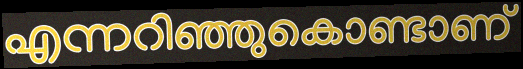
എന്നറിഞ്ഞുകൊണ്ടാണ്